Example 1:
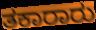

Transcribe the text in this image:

ತಕಾರಾರು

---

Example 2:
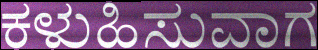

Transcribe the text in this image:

ಕಳುಹಿಸುವಾಗ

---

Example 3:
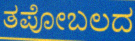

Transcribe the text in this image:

ತಪೋಬಲದ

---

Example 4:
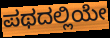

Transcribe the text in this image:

ಪಥದಲ್ಲಿಯೇ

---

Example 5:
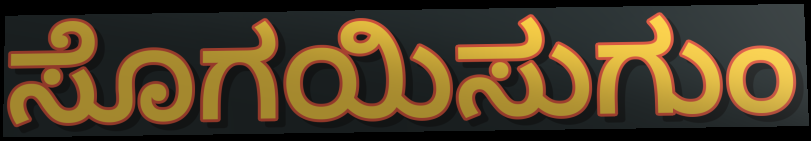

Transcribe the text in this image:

ಸೊಗಯಿಸುಗುಂ